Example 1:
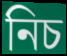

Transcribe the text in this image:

নিচ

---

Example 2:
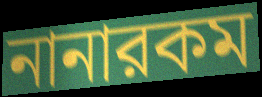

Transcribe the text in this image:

নানারকম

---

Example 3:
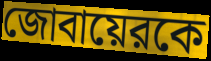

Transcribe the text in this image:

জোবায়েরকে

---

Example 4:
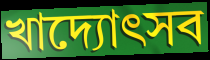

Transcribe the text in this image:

খাদ্যোৎসব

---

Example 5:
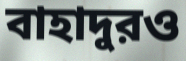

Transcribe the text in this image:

বাহাদুরও